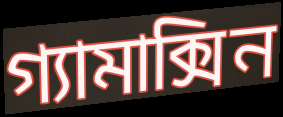
গ্যামাক্সিন